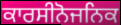
ਕਾਰਸੀਨੋਜਨਿਕ